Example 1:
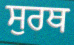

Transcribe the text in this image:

ਸੁਰਥ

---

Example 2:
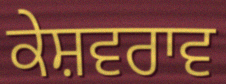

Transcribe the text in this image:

ਕੇਸ਼ਵਰਾਵ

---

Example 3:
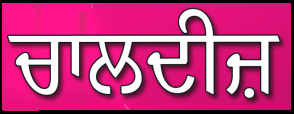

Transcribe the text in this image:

ਚਾਲਦੀਜ਼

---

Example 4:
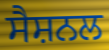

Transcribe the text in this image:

ਸੈਸ਼ਨਲ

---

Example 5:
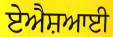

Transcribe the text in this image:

ਏਐਸ਼ਆਈ